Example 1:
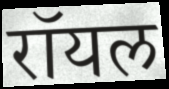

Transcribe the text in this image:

रॉयल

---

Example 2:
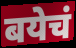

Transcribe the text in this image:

बयेचं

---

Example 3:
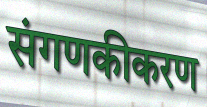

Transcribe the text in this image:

संगणकीकरण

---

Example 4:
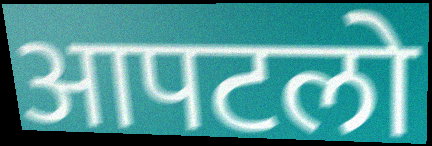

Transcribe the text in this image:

आपटलो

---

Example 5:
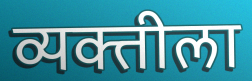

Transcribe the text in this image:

व्यक्तीला